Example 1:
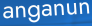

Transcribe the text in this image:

anganun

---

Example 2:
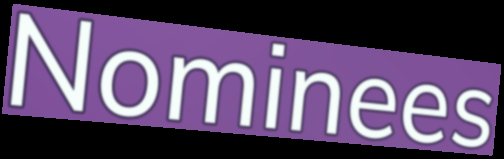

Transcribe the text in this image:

Nominees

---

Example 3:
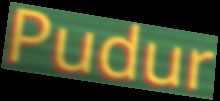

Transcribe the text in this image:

Pudur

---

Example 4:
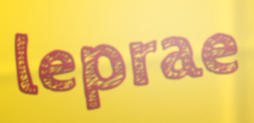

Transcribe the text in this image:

leprae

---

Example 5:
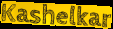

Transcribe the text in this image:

Kashelkar